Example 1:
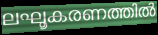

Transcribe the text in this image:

ലഘൂകരണത്തിൽ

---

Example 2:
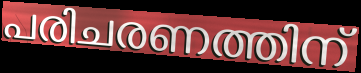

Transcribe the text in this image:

പരിചരണത്തിന്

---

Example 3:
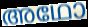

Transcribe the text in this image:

അഥോ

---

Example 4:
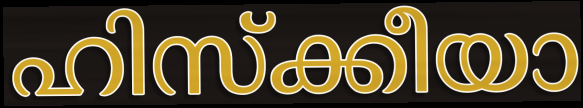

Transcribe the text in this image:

ഹിസ്ക്കീയാ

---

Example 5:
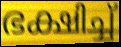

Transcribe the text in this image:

ഭക്ഷിച്ച്